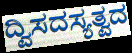
ದ್ವಿಸದಸ್ಯತ್ವದ